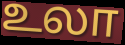
உலா